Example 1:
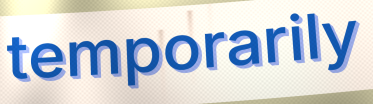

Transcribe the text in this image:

temporarily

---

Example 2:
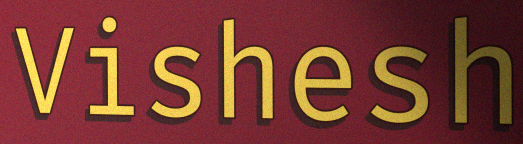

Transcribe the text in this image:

Vishesh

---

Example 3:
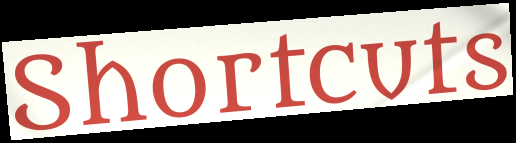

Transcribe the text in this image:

Shortcuts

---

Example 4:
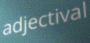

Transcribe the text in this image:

adjectival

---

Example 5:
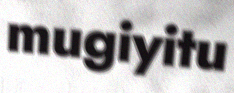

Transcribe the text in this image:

mugiyitu